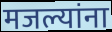
मजल्यांना